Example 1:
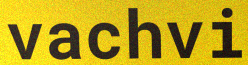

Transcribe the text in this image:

vachvi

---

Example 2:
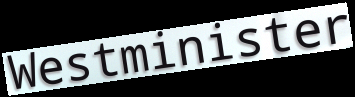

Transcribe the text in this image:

Westminister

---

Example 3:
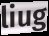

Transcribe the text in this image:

liug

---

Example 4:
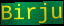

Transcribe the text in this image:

Birju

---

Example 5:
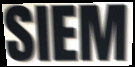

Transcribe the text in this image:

SIEM